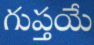
గుప్తయే